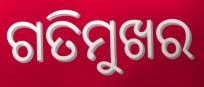
ଗତିମୁଖର